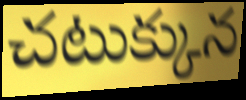
చటుక్కున